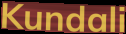
Kundali